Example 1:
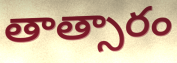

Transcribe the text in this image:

తాత్సారం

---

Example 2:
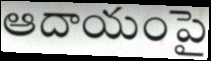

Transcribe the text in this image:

ఆదాయంపై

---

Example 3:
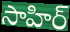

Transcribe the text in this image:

సాహిర్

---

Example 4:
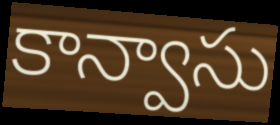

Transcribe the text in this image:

కాన్వాసు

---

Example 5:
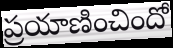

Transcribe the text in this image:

ప్రయాణించిందో